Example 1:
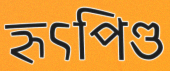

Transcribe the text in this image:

হৃৎপিণ্ড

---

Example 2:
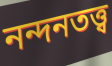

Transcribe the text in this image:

নন্দনতত্ত্ব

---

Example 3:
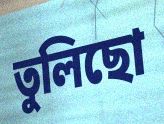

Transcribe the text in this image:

তুলিছো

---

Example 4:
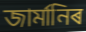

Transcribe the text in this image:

জাৰ্মানিৰ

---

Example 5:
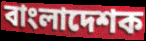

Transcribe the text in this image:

বাংলাদেশক